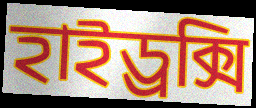
হাইড্রক্সি